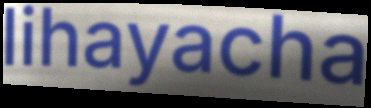
lihayacha